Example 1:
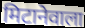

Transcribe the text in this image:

मिटानेवाला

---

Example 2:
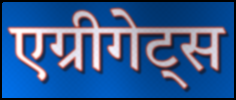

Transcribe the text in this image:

एग्रीगेट्स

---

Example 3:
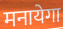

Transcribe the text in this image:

मनायेगा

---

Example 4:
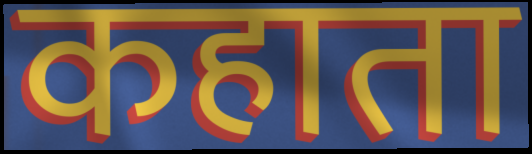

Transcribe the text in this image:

कहाता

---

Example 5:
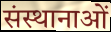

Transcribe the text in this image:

संस्थानाओं